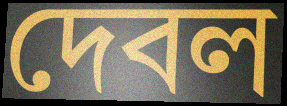
দেবল